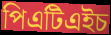
পিএটিএইচ